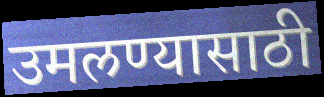
उमलण्यासाठी